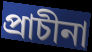
প্রাচীনা